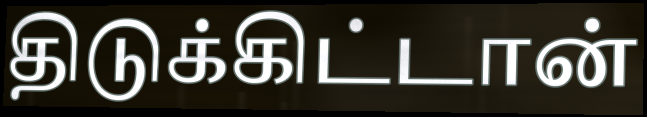
திடுக்கிட்டான்